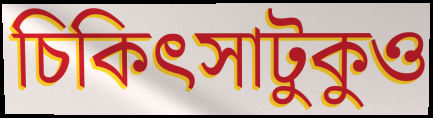
চিকিৎসাটুকুও